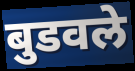
बुडवले